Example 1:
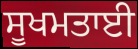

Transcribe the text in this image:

ਸੂਖਮਤਾਈ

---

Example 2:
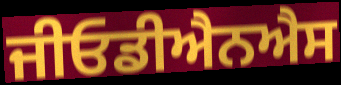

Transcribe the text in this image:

ਜੀਓਡੀਐਨਐਸ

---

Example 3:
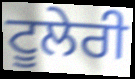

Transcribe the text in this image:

ਟੂਲੇਰੀ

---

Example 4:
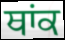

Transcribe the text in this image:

ਥਾਂਕ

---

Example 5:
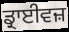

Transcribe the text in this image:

ਡ੍ਰਾਈਵਜ਼